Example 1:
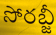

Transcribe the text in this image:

సోరబ్జీ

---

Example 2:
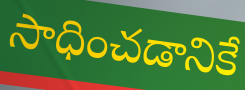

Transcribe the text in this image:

సాధించడానికే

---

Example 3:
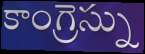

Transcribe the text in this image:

కాంగ్రెస్ను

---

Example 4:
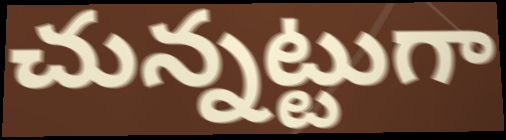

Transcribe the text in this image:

చున్నట్టుగా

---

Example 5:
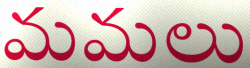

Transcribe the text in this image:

మమలు